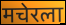
मचेरला